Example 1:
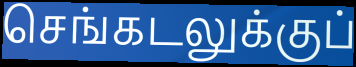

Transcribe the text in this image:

செங்கடலுக்குப்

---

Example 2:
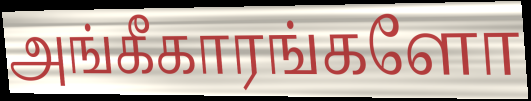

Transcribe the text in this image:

அங்கீகாரங்களோ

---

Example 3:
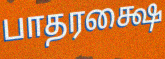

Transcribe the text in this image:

பாதரக்ஷை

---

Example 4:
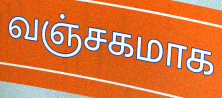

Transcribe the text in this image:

வஞ்சகமாக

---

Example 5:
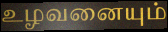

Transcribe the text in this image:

உழவனையும்